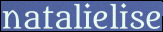
natalielise